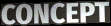
CONCEPT